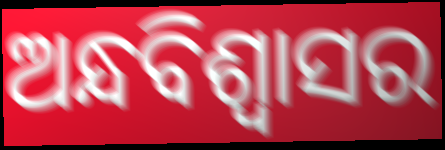
ଅନ୍ଧବିଶ୍ୱାସର